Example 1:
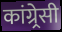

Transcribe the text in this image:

कांग्र्रेसी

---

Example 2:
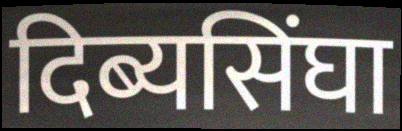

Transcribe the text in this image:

दिब्यसिंघा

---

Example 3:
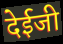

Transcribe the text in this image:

देईजी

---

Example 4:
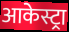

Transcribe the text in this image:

आकेस्ट्रा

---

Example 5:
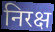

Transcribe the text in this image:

निरक्ष